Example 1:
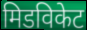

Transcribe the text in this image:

मिडविकेट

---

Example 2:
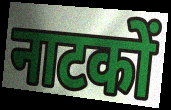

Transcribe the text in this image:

नाटकों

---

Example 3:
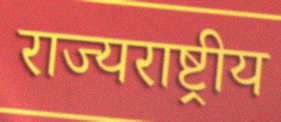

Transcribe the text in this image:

राज्यराष्ट्रीय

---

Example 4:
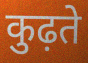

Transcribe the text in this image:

कुढ़ते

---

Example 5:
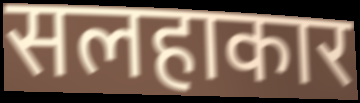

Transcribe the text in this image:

सलहाकार